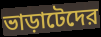
ভাড়াটেদের